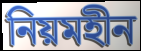
নিয়মহীন